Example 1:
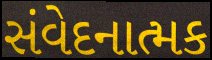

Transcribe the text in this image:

સંવેદનાત્મક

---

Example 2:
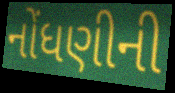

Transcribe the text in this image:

નોંધણીની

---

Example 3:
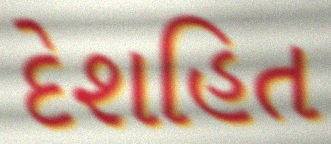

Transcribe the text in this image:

દેશહિત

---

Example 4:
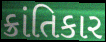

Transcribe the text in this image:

ક્રાંતિકાર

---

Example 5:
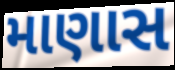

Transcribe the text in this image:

માણાસ